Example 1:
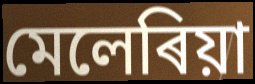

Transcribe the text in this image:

মেলেৰিয়া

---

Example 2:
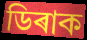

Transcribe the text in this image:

ডিৰাক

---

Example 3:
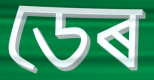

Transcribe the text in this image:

ডেৰ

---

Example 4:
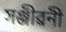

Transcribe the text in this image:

সঞ্জীৱনী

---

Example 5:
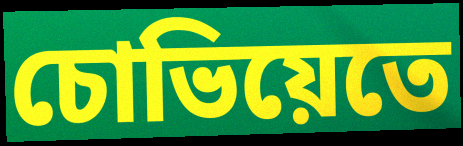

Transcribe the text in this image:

চোভিয়েতে